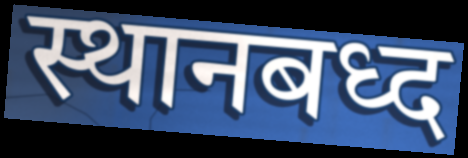
स्थानबध्द